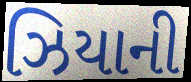
ઝિયાની